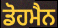
ਡੋਹਮੈਨ